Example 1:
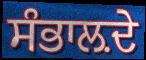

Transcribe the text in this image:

ਸੰਭਾਲ਼ਦੇ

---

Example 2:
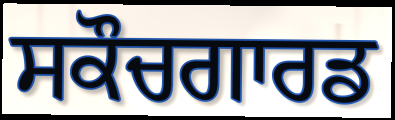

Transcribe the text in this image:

ਸਕੌਚਗਾਰਡ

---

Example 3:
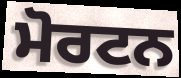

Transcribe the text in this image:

ਮੋਰਟਨ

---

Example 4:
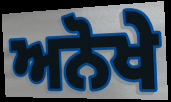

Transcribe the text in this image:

ਅਨੋਖੇ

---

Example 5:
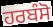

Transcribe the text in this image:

ਹਰਬੰਸੋ